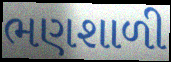
ભણશાળી